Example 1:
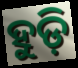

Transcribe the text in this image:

ହୁଡ଼ି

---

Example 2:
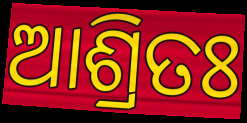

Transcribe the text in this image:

ଆଶ୍ରିତଃ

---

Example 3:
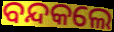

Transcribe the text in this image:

ବନ୍ଦକଲେ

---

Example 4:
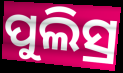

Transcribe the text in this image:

ପୁଲିସ୍ର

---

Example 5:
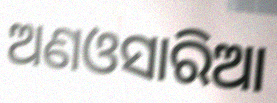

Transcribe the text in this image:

ଅଣଓସାରିଆ